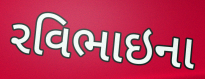
રવિભાઇના